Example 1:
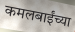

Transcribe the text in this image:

कमलबाईंच्या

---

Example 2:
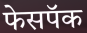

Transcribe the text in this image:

फेसपॅक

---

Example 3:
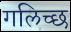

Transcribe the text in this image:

गलिच्छ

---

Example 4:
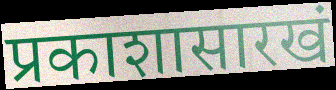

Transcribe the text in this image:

प्रकाशासारखं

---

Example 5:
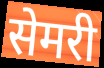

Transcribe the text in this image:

सेमरी